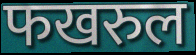
फखरुल